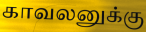
காவலனுக்கு